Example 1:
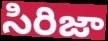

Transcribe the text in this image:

సిరిజా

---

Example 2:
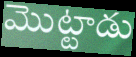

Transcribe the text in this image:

మొట్టాడు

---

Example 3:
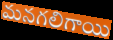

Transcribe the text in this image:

మనగలిగాయి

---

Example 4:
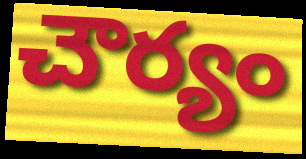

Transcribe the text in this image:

చౌర్యం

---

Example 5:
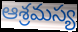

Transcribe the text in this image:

ఆశ్రమస్య